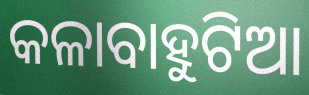
କଳାବାହୁଟିଆ